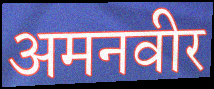
अमनवीर